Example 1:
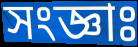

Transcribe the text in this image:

সংজ্ঞাঃ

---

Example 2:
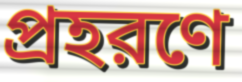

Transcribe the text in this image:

প্রহরণে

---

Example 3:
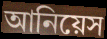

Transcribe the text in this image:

আনিয়েস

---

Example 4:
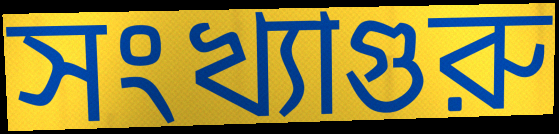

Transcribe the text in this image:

সংখ্যাগুরু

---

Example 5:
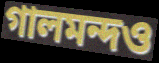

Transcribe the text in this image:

গালমন্দও